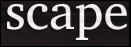
scape